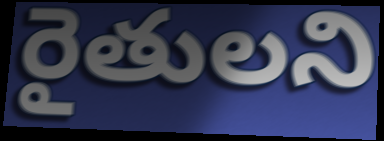
రైతులని